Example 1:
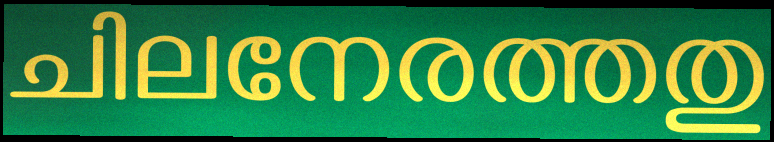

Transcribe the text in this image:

ചിലനേരത്തതു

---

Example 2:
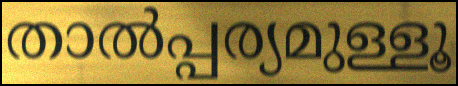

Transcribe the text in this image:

താൽപ്പര്യമുള്ളൂ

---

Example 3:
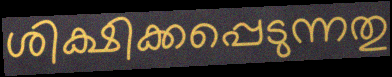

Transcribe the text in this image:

ശിക്ഷിക്കപ്പെടുന്നതു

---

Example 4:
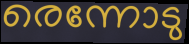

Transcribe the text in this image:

രെന്നോടു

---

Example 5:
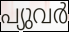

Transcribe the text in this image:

പ്യുവർ